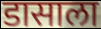
डासाला